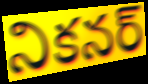
నికనర్